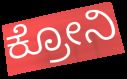
ಕ್ರೋನಿ